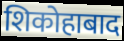
शिकोहाबाद